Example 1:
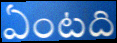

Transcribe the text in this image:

ఏంటది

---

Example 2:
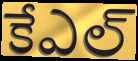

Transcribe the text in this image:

కేఎల్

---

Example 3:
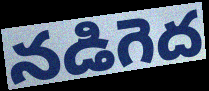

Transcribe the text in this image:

నడిగెద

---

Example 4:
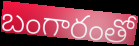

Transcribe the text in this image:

బంగారంతో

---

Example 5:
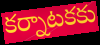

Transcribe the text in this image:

కర్నాటకకు